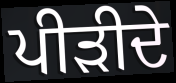
ਪੀੜੀਦੇ